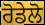
ਰੋਡੇਲੋ